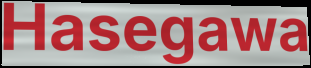
Hasegawa